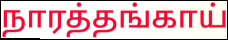
நாரத்தங்காய்